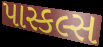
પાસ્કલ્સ